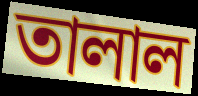
তালাল